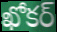
ఖోకర్